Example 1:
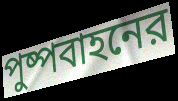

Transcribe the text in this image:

পুষ্পবাহনের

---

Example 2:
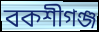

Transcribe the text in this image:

বকশীগঞ্জ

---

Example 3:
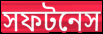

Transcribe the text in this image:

সফটনেস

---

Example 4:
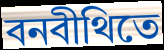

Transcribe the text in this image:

বনবীথিতে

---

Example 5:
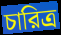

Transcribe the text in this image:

চারিত্র